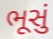
ભૂસું